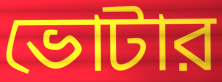
ভোটার